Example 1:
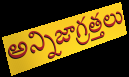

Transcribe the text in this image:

అన్నిజాగ్రత్తలు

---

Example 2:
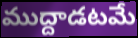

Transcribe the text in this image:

ముద్దాడటమే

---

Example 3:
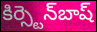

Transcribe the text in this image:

కిర్స్టెన్‌బాష్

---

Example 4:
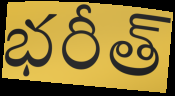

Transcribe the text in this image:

భరీత్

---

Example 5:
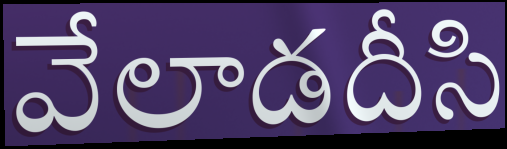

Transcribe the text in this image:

వేలాడదీసి